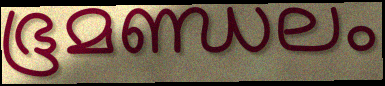
ഭൂമണ്ഡലം